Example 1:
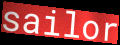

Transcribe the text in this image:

sailor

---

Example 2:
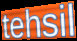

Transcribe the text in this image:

tehsil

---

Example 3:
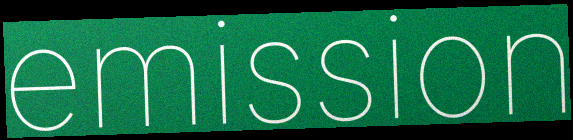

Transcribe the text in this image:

emission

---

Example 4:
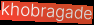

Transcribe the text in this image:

khobragade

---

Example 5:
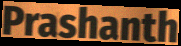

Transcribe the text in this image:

Prashanth